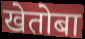
खेतोबा